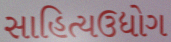
સાહિત્યઉદ્યોગ